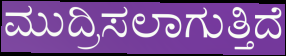
ಮುದ್ರಿಸಲಾಗುತ್ತಿದೆ